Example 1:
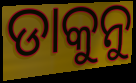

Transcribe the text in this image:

ଡାକୁନୁ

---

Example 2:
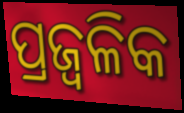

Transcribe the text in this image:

ପ୍ରଜ୍ଵଳିକ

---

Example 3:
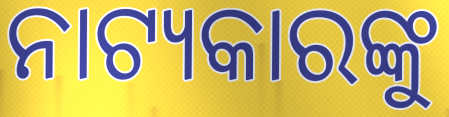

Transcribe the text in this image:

ନାଟ୍ୟକାରଙ୍କୁ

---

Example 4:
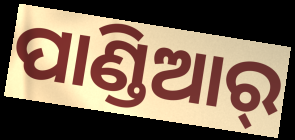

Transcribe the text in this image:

ପାଣ୍ଡିଆର୍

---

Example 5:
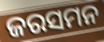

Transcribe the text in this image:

ଜରସମନ